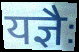
यज्ञैः